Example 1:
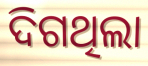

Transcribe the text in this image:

ଦିଗଥିଲା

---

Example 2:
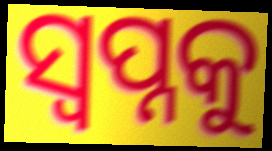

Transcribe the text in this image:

ସ୍ୱପ୍ନକୁ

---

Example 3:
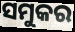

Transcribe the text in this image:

ସମୁକର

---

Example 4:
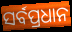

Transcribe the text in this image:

ସର୍ବପ୍ରଧାନ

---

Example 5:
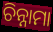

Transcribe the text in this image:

ଚିନ୍ନାମା